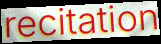
recitation